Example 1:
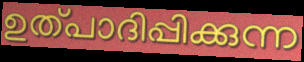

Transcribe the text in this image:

ഉത്പാദിപ്പിക്കുന്ന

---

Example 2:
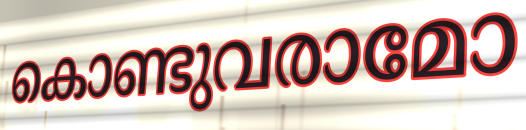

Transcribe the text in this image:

കൊണ്ടുവരാമോ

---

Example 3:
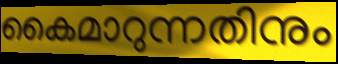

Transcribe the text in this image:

കൈമാറുന്നതിനും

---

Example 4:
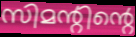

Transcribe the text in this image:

സിമന്റിന്റെ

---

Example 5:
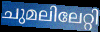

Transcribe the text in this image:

ചുമലിലേറ്റി